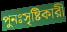
পুনঃসৃষ্টিকারী